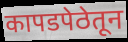
कापडपेठेतून